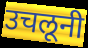
उचलूनी